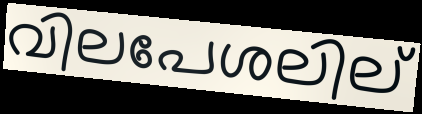
വിലപേശലില്